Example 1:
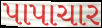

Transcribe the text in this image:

પાપાચાર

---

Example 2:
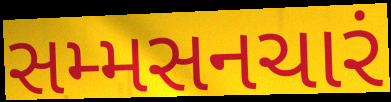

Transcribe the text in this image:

સમ્મસનચારં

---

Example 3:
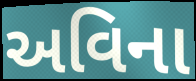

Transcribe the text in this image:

અવિના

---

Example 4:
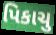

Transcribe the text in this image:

પિકાચુ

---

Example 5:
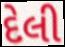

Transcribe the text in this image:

દેલી